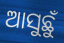
ଆସୁଛୁଁ